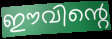
ഈവിന്റെ